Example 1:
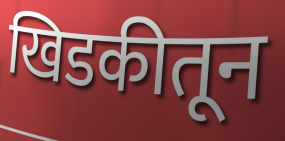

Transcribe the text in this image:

खिडकीतून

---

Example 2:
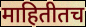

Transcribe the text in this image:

माहितीतच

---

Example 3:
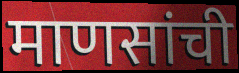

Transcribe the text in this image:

माणसांची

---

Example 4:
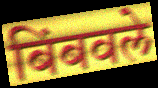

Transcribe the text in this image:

बिंबवले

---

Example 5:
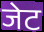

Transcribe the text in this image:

जेट